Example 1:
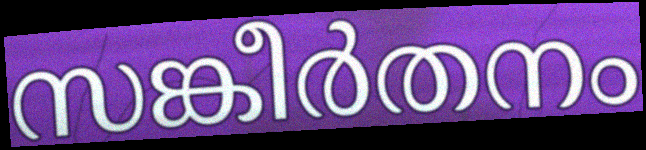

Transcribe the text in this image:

സങ്കീർതനം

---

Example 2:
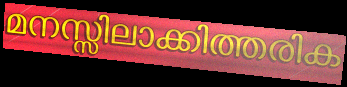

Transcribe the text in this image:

മനസ്സിലാക്കിത്തരിക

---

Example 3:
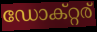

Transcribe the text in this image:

ഡോക്റ്റര്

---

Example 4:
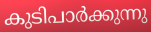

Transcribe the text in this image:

കുടിപാർക്കുന്നു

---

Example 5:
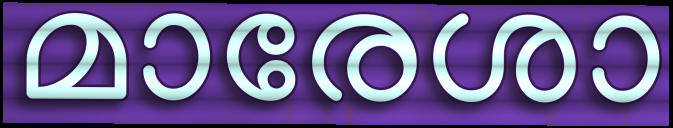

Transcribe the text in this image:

മാരേശാ